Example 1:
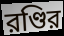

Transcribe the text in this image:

রণ্ডির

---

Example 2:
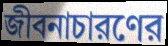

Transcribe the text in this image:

জীবনাচারণের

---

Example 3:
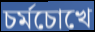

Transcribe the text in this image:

চর্মচোখে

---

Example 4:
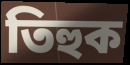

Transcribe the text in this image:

তিহুক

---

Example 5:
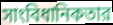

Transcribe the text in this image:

সাংবিধানিকতার